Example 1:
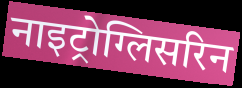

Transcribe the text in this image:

नाइट्रोग्लिसरिन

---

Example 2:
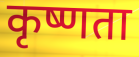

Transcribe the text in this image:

कृष्णता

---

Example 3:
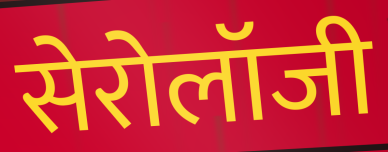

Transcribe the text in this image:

सेरोलॉजी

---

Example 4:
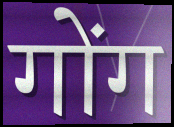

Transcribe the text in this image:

गोंग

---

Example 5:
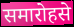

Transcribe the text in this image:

समारोहसे